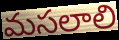
మసలాలి